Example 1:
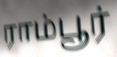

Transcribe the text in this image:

ராம்பூர்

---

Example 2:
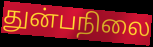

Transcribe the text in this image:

துன்பநிலை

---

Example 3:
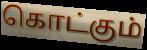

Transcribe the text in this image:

கொட்கும்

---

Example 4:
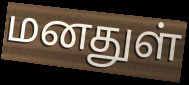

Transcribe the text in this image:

மனதுள்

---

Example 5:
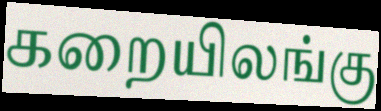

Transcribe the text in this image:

கறையிலங்கு